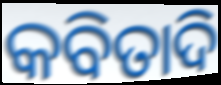
କବିତାଦି